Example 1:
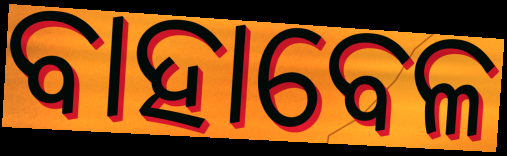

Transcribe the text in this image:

ବାହାବେଳ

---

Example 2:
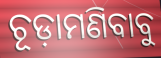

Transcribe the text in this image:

ଚୂଡ଼ାମଣିବାବୁ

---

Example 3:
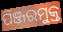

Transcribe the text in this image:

ପିଞ୍ଜରମୁକ୍ତ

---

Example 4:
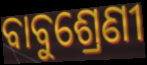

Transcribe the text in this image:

ବାବୁଶ୍ରେଣୀ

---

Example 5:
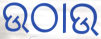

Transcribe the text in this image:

ଉଠାଉ